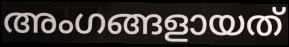
അംഗങ്ങളായത്